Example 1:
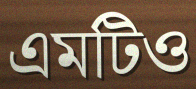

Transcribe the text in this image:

এমটিও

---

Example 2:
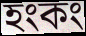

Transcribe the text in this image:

হংকং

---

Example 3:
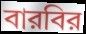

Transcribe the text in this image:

বারবির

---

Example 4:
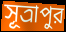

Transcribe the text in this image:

সূত্রাপুর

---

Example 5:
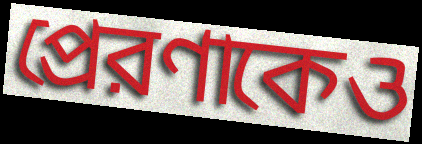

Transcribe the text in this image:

প্রেরণাকেও